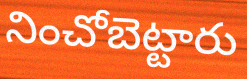
నించోబెట్టారు